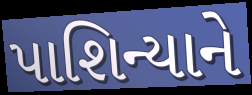
પાશિન્યાને